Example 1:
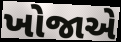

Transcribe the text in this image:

ખોજાએ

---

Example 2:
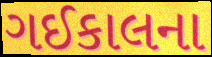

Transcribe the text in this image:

ગઈકાલના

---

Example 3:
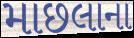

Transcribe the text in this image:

માછલાના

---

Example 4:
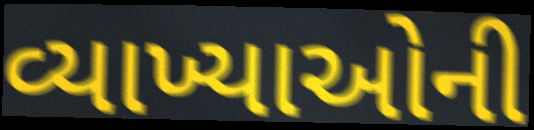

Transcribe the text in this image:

વ્યાખ્યાઓની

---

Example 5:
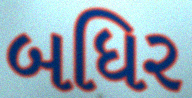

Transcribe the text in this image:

બધિર